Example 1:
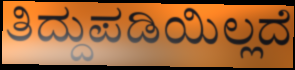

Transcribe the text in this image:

ತಿದ್ದುಪಡಿಯಿಲ್ಲದೆ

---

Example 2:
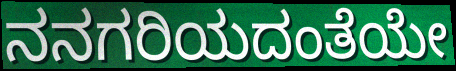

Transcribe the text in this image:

ನನಗರಿಯದಂತೆಯೇ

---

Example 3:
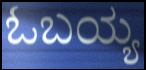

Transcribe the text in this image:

ಓಬಯ್ಯ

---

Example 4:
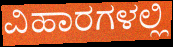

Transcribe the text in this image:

ವಿಹಾರಗಳಲ್ಲಿ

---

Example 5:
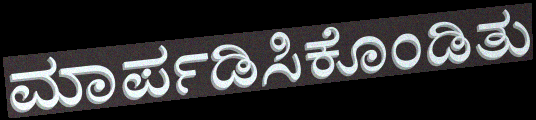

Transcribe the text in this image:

ಮಾರ್ಪಡಿಸಿಕೊಂಡಿತು